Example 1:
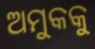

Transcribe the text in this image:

ଅମୁକକୁ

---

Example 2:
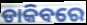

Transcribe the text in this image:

ଡାକିବରେ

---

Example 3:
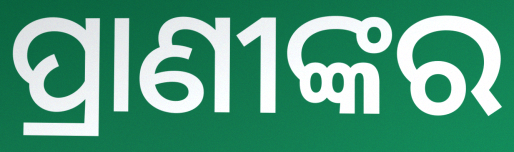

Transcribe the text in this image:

ପ୍ରାଣୀଙ୍କର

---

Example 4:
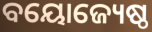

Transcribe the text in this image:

ବୟୋଜ୍ୟେଷ୍ଠ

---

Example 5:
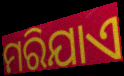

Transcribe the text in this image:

ମରିଯାଏ